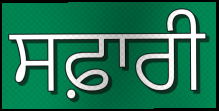
ਸਫ਼ਾਰੀ